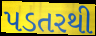
પડતરથી